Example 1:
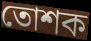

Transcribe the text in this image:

তোশক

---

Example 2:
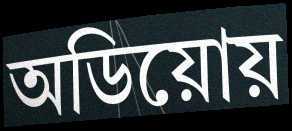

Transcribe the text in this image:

অডিয়োয়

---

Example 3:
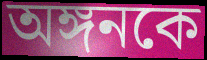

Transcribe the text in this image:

অঙ্গনকে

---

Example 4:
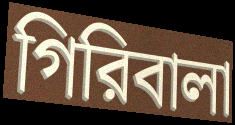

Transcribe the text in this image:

গিরিবালা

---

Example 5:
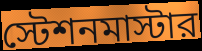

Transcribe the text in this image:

স্টেশনমাস্টার